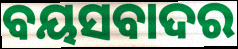
ବୟସବାଦର